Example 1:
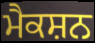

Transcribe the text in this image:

ਮੈਕਸ਼ਨ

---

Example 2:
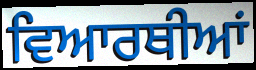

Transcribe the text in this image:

ਵਿਆਰਥੀਆਂ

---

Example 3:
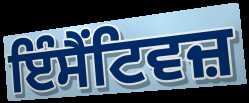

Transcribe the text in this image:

ਇੰਸੈਂਟਿਵਜ਼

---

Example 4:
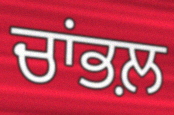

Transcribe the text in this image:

ਚਾਂਭਲ਼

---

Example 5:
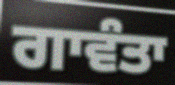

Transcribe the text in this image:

ਗਾਵੰਤਾ